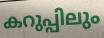
കറുപ്പിലും